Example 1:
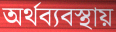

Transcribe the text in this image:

অর্থব্যবস্থায়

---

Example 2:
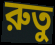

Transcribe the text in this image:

রুতু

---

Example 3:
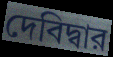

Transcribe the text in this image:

দেবিদ্বার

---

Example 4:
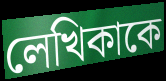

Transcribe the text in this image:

লেখিকাকে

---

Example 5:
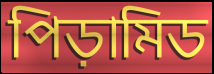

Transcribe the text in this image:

পিড়ামিড